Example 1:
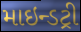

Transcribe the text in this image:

માઇન્ડટ્રી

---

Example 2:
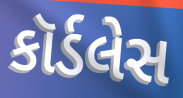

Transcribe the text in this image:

કૉર્ડલેસ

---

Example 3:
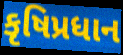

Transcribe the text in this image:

કૃષિપ્રધાન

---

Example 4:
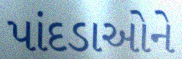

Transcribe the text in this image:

પાંદડાઓને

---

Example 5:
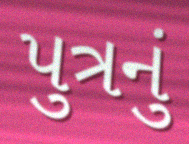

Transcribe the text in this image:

પુત્રનું